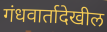
गंधवार्तादेखील